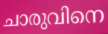
ചാരുവിനെ